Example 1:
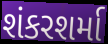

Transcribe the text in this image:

શંકરશર્મા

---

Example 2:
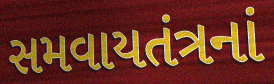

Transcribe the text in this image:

સમવાયતંત્રનાં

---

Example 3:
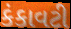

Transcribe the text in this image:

કંકાવટી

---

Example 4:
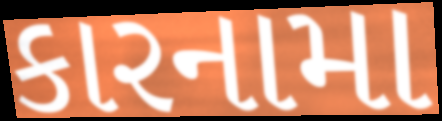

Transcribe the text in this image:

કારનામા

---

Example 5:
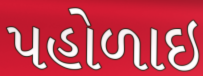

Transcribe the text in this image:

પહોળાઇ